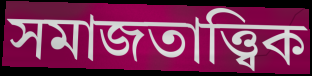
সমাজতাত্ত্বিক